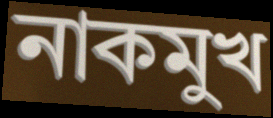
নাকমুখ